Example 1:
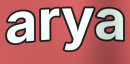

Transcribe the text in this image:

arya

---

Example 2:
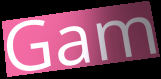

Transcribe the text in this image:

Gam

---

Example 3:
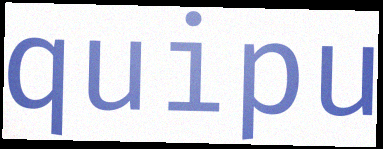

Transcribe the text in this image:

quipu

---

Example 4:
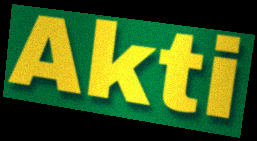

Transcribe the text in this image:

Akti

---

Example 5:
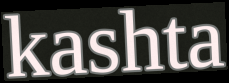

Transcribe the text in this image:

kashta